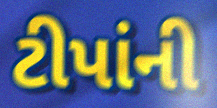
ટીપાંની